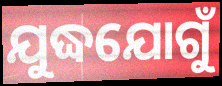
ଯୁଦ୍ଧଯୋଗୁଁ